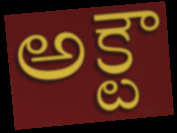
అక్టౌ